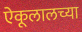
ऐकूलालच्या